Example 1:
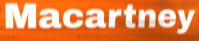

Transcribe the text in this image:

Macartney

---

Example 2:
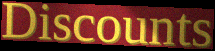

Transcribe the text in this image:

Discounts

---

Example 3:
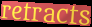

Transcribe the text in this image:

retracts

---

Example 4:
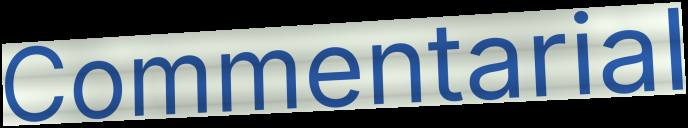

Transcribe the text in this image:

Commentarial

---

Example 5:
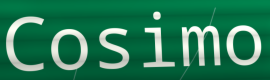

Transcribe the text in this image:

Cosimo